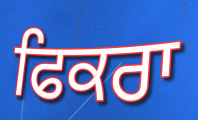
ਫਿਕਰਾ